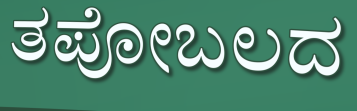
ತಪೋಬಲದ